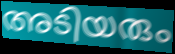
അടിയരും